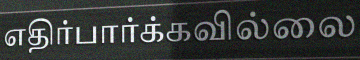
எதிர்பார்க்கவில்லை